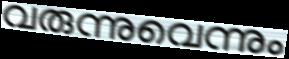
വരുന്നുവെന്നും